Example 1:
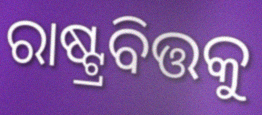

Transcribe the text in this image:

ରାଷ୍ଟ୍ରବିତ୍ତକୁ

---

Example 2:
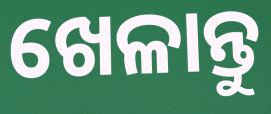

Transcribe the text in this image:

ଖେଳାନ୍ତୁ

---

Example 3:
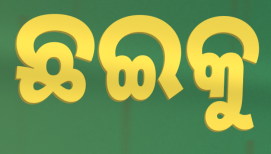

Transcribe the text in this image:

ଛଇକୁ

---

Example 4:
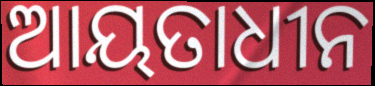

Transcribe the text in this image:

ଆୟତାଧୀନ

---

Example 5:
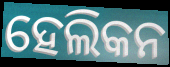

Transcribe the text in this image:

ହେଲିକନ